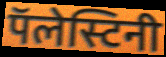
पॅलेस्टिनी